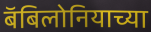
बॅबिलोनियाच्या